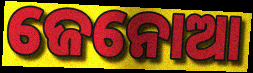
ଜେନୋଆ